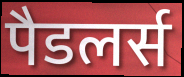
पैडलर्स